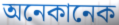
অনেকানেক